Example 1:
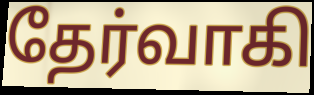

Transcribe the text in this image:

தேர்வாகி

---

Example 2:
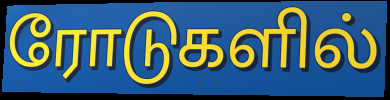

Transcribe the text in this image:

ரோடுகளில்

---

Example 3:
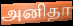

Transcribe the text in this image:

அனிதா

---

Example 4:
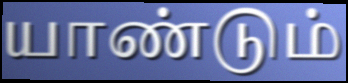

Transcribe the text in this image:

யாண்டும்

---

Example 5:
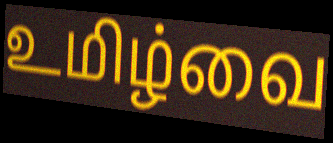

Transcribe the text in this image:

உமிழ்வை